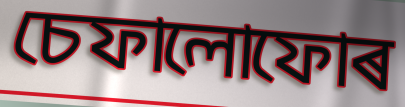
চেফালোফোৰ